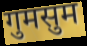
गुमसुम